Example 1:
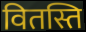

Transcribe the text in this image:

वितस्ति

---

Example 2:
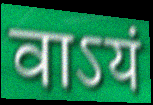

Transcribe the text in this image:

वाऽयं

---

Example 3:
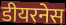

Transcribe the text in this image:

डीयरनेस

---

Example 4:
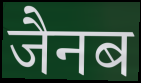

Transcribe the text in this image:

जैनब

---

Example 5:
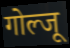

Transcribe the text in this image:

गोल्जू